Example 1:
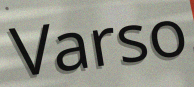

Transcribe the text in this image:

Varso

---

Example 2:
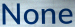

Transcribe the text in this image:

None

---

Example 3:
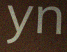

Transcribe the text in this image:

yn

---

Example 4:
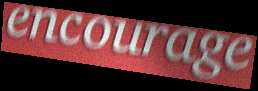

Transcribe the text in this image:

encourage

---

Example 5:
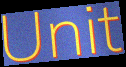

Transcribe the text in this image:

Unit